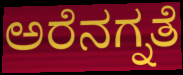
ಅರೆನಗ್ನತೆ